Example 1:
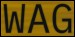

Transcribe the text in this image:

WAG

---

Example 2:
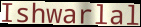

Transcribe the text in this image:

Ishwarlal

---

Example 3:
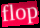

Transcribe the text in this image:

flop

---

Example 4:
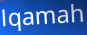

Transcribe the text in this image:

Iqamah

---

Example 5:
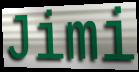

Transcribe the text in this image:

Jimi